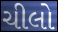
ચીલો